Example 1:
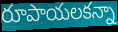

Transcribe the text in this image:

రూపాయలకన్నా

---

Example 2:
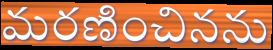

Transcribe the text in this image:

మరణించినను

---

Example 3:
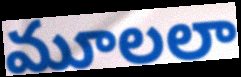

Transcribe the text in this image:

మూలలా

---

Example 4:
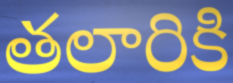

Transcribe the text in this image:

తలారికి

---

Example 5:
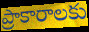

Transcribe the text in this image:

ప్రాకారాలకు